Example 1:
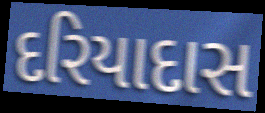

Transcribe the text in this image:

દરિયાદાસ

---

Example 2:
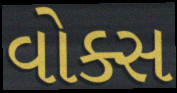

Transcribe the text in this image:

વોક્સ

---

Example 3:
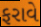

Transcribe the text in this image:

ફરાવે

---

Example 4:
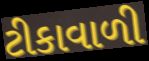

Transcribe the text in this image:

ટીકાવાળી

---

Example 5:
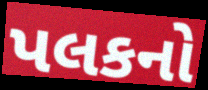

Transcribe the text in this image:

પલકનો